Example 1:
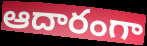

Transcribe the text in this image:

ఆదారంగా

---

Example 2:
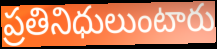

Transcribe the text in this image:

ప్రతినిధులుంటారు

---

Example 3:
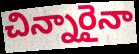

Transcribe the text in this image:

చిన్నారైనా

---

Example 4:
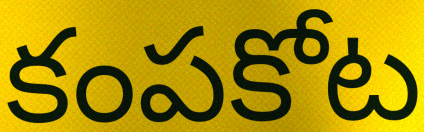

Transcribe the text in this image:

కంపకోట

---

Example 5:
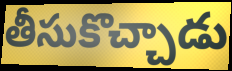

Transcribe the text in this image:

తీసుకొచ్చాడు